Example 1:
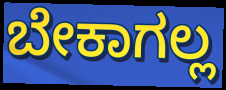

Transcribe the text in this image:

ಬೇಕಾಗಲ್ಲ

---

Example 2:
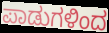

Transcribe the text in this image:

ಪಾಡುಗಳಿಂದ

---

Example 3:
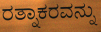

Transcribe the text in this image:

ರತ್ನಾಕರವನ್ನು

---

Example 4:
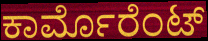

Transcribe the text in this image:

ಕಾರ್ಮೊರೆಂಟ್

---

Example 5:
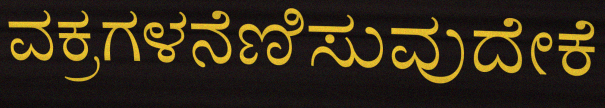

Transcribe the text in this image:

ವಕ್ರಗಳನೆಣಿಸುವುದೇಕೆ